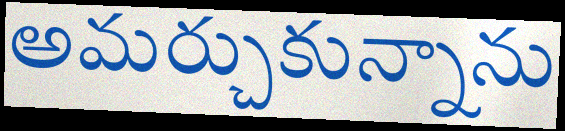
అమర్చుకున్నాను